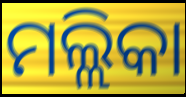
ମଲ୍ଲିକା